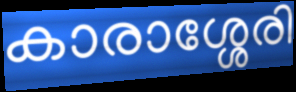
കാരാശ്ശേരി